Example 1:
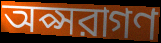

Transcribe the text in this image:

অপ্সরাগণ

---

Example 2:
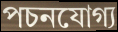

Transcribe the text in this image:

পচনযোগ্য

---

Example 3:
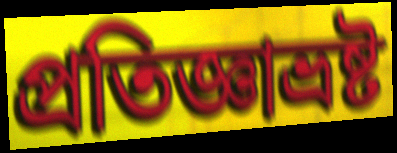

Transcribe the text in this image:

প্রতিজ্ঞাভ্রষ্ট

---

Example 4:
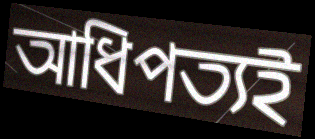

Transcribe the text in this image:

আধিপত্যই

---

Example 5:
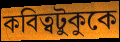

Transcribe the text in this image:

কবিত্বটুকুকে